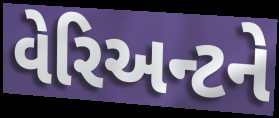
વેરિઅન્ટને